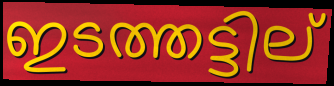
ഇടത്തട്ടില്